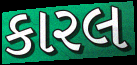
કારલ